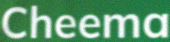
Cheema